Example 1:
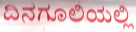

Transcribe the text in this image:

ದಿನಗೂಲಿಯಲ್ಲಿ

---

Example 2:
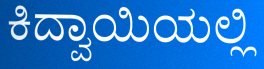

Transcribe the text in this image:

ಕಿದ್ವಾಯಿಯಲ್ಲಿ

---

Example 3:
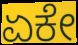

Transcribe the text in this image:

ಏಕೇ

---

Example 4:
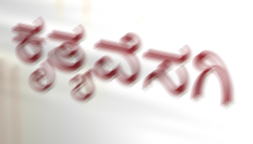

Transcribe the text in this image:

ಕೃತ್ಯವೆಸಗಿ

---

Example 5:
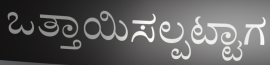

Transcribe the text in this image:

ಒತ್ತಾಯಿಸಲ್ಪಟ್ಟಾಗ